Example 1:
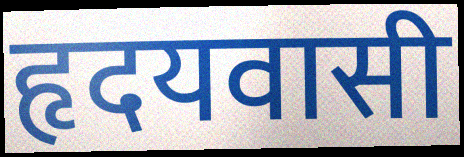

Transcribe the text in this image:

हृदयवासी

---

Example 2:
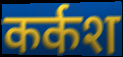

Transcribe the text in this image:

कर्कश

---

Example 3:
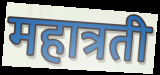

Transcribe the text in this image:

महात्रती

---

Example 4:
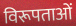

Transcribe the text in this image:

विरूपताओं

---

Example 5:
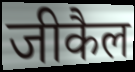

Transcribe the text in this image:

जीकैल